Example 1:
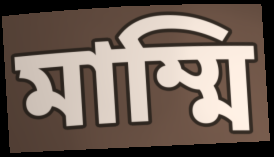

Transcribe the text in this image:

মাম্মি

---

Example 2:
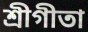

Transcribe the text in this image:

শ্রীগীতা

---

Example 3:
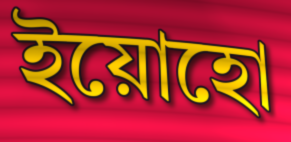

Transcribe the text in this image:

ইয়োহো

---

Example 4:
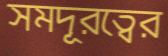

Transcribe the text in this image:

সমদূরত্বের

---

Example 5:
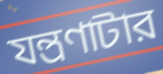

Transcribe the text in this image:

যন্ত্রণাটার